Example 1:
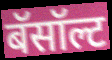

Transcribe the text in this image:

बॅसॉल्ट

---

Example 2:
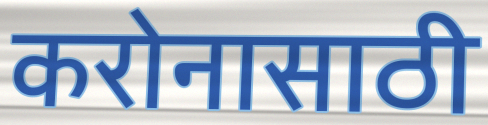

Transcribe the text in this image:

करोनासाठी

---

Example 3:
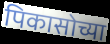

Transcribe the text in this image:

पिकासोच्या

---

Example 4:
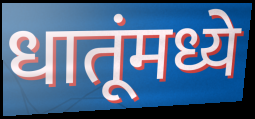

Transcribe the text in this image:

धातूंमध्ये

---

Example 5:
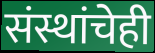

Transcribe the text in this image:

संस्थांचेही